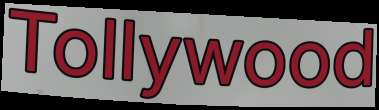
Tollywood